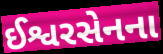
ઈશ્વરસેનના